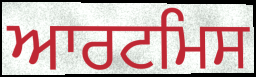
ਆਰਟਮਿਸ